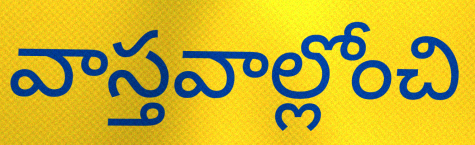
వాస్తవాల్లోంచి